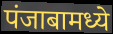
पंजाबामध्ये